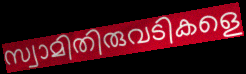
സ്വാമിതിരുവടികളെ